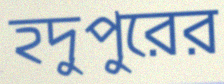
হদুপুরের